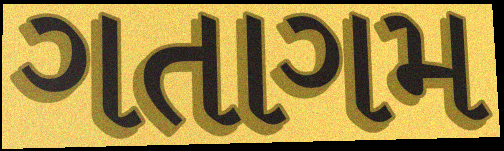
ગતાગમ